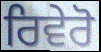
ਰਿਵੇਰੋ